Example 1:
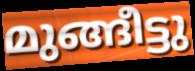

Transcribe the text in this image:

മുങ്ങീട്ടു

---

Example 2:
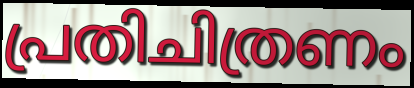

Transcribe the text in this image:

പ്രതിചിത്രണം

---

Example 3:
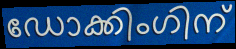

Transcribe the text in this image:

ഡോക്കിംഗിന്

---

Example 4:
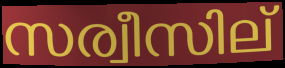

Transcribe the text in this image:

സര്വീസില്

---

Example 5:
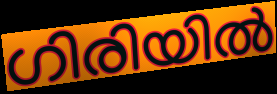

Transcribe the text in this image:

ഗിരിയിൽ